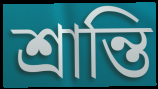
শ্রান্তি